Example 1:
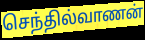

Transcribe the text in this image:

செந்தில்வாணன்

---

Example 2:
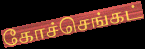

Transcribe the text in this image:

கோச்செங்கட்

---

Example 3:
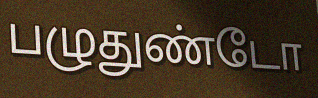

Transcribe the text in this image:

பழுதுண்டோ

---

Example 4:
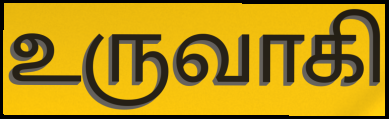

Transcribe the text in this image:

உருவாகி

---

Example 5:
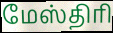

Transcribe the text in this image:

மேஸ்திரி